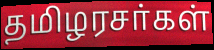
தமிழரசர்கள்